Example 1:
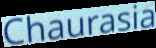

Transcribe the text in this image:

Chaurasia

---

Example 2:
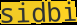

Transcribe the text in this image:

sidbi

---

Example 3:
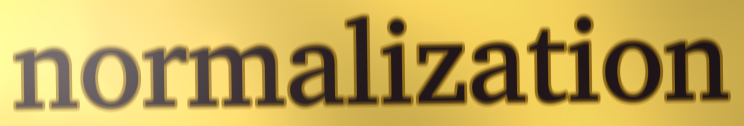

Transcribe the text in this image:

normalization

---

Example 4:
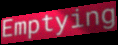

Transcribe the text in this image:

Emptying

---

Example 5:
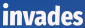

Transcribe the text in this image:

invades